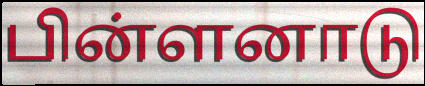
பின்ளனாடு